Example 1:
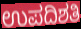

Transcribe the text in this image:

ಉಪದಿಶತಿ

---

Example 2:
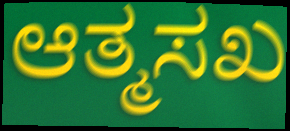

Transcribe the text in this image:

ಆತ್ಮಸಖ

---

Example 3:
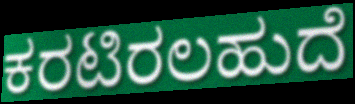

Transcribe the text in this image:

ಕರಟಿರಲಹುದೆ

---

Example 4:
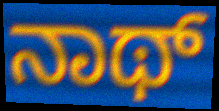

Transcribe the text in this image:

ನಾಥ್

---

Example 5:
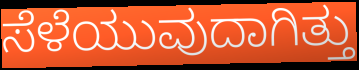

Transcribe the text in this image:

ಸೆಳೆಯುವುದಾಗಿತ್ತು